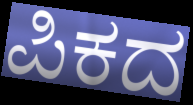
ಪಿಕದ